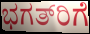
ಭಗತ್‍ರಿಗೆ